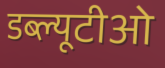
डब्ल्यूटीओ